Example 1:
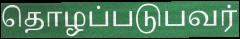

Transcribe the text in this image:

தொழப்படுபவர்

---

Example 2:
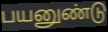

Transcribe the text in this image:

பயனுண்டு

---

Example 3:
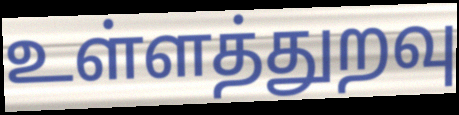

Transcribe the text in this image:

உள்ளத்துறவு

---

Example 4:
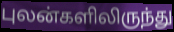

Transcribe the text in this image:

புலன்களிலிருந்து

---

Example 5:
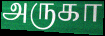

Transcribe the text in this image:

அருகா